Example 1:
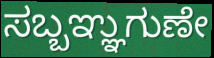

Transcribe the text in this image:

ಸಬ್ಬಞ್ಞುಗುಣೇ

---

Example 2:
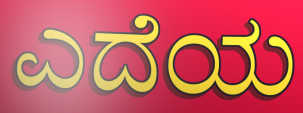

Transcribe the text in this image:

ಎದೆಯ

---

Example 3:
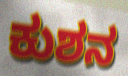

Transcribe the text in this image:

ಕುಶನ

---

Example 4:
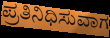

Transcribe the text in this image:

ಪ್ರತಿನಿಧಿಸುವಾಗ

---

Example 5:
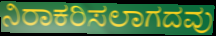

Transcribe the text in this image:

ನಿರಾಕರಿಸಲಾಗದವು